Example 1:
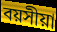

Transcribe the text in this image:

বয়সীয়া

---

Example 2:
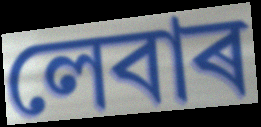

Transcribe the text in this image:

লেবাৰ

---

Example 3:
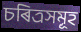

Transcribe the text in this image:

চৰিত্ৰসমূহ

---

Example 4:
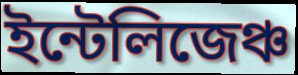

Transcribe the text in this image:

ইন্টেলিজেঞ্চ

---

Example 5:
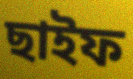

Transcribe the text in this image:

ছাইফ